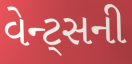
વેન્ટ્સની